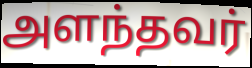
அளந்தவர்